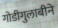
गोडीगुलाबीने